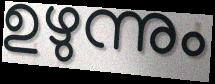
ഉഴുന്നും